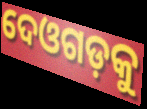
ଦେଓଗଡ଼କୁ